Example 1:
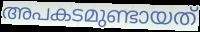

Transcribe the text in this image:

അപകടമുണ്ടായത്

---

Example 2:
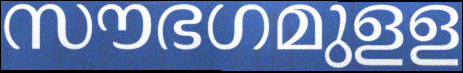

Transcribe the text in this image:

സൗഭഗമുളള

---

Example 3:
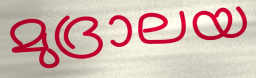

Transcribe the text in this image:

മുദ്രാലയ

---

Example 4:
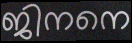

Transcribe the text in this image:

ജിനനെ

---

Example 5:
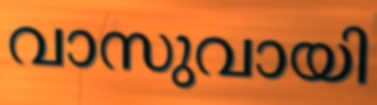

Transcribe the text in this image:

വാസുവായി